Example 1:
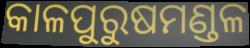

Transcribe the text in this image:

କାଳପୁରୁଷମଣ୍ଡଳ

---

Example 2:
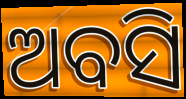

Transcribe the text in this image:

ଅବସି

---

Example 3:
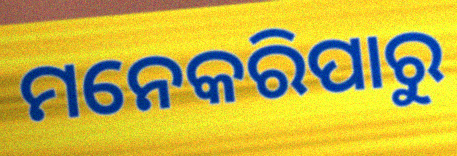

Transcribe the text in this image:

ମନେକରିପାରୁ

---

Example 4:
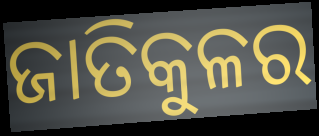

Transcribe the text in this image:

ଜାତିକୁଳର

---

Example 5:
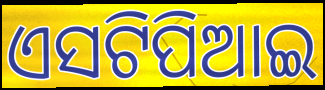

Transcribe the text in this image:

ଏସଟିପିଆଇ